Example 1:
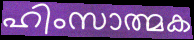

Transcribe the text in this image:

ഹിംസാത്മക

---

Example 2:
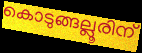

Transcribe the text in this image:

കൊടുങ്ങല്ലൂരിന്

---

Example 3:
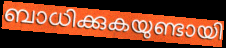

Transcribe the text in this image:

ബാധിക്കുകയുണ്ടായി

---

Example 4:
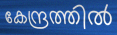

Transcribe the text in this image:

കേന്ദ്രത്തിൽ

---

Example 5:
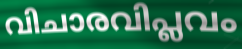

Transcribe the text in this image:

വിചാരവിപ്ലവം